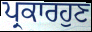
ਪ੍ਰਕਾਰਹੁਣ